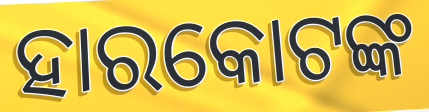
ହାରକୋଟଙ୍କ